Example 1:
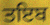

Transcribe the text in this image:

ਤਇਬ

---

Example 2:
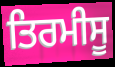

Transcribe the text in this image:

ਤਿਰਮੀਸੂ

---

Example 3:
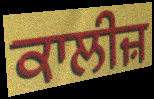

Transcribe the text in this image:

ਕਾਲੀਜ਼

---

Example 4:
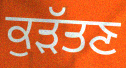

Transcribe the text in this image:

ਕੁੜੱਤਣ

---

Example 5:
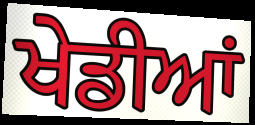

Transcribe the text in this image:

ਖੇਡੀਆਂ